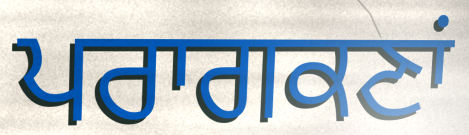
ਪਰਾਗਕਣਾਂ